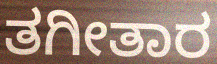
ತಗೀತಾರ